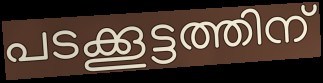
പടക്കൂട്ടത്തിന്